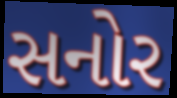
સનોર